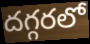
దగ్గరలో